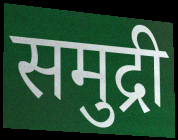
समुद्री